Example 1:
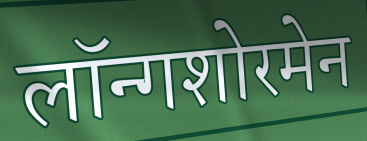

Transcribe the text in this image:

लॉन्गशोरमेन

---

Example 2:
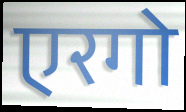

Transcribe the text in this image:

एरगो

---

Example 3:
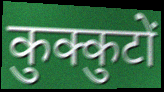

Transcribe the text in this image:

कुक्कुटों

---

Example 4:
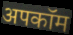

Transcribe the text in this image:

अपकॉम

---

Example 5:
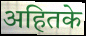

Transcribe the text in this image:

अहितके